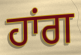
ਹਾਂਗ